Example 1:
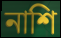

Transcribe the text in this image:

নাশি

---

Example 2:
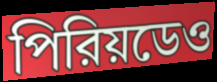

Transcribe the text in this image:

পিরিয়ডেও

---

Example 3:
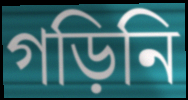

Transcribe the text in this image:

গড়িনি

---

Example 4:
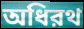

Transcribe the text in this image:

অধিরথ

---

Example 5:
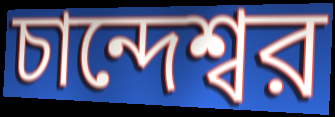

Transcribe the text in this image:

চান্দেশ্বর